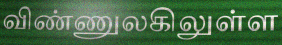
விண்ணுலகிலுள்ள